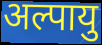
अल्पायु